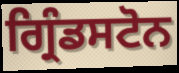
ਗ੍ਰਿੰਡਸਟੋਨ